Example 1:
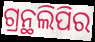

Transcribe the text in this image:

ଗ୍ରନ୍ଥଲିପିର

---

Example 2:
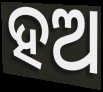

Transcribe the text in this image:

ହଅ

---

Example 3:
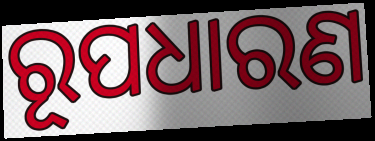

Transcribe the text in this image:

ରୂପଧାରଣ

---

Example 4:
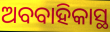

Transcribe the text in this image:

ଅବବାହିକାସ୍ଥ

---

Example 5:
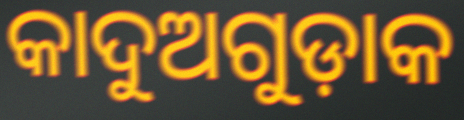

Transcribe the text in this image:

କାଦୁଅଗୁଡ଼ାକ